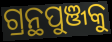
ଗ୍ରନ୍ଥପୁଞ୍ଜକୁ